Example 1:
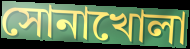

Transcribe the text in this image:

সোনাখোলা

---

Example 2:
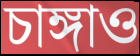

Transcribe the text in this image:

চাঙ্গাও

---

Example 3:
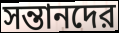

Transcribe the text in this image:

সন্তানদের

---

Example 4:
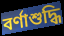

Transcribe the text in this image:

বর্ণাশুদ্ধি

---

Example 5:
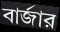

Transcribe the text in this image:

বার্জার